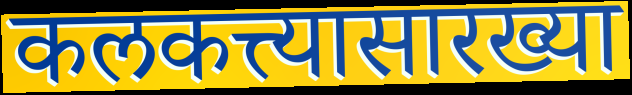
कलकत्त्यासारख्या